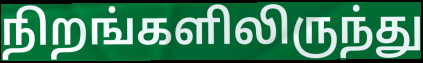
நிறங்களிலிருந்து